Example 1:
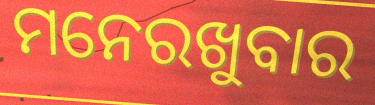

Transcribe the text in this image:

ମନେରଖୁବାର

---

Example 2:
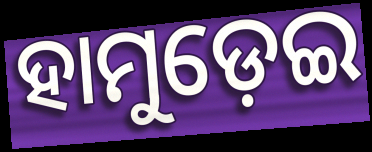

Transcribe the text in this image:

ହାମୁଡ଼େଇ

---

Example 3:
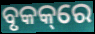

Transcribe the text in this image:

ବୃକକ୍‌ରେ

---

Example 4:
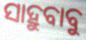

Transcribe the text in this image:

ସାହୁବାବୁ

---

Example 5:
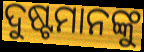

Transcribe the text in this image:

ଦୁଷ୍ଟମାନଙ୍କୁ